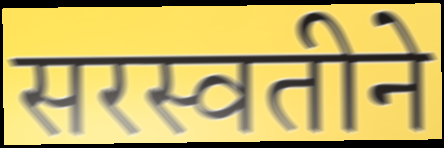
सरस्वतीने